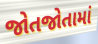
જોતજોતામાં